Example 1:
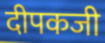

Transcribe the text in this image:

दीपकजी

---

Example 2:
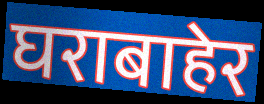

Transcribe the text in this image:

घराबाहेर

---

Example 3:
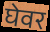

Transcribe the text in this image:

घेवर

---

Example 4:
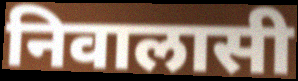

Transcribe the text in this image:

निवालासी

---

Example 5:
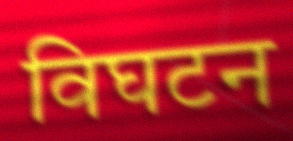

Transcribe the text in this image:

विघटन